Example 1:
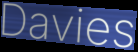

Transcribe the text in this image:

Davies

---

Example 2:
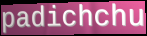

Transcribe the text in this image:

padichchu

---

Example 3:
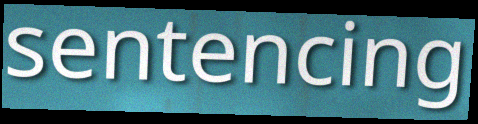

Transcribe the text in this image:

sentencing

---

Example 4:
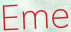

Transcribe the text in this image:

Eme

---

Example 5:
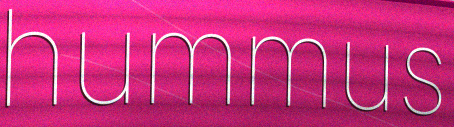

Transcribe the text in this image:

hummus